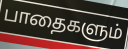
பாதைகளும்